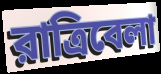
রাত্রিবেলা